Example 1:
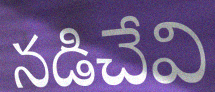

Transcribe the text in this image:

నడిచేవి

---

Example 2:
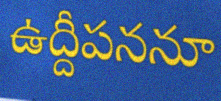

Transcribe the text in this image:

ఉద్దీపననూ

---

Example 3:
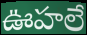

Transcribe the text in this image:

ఊహలే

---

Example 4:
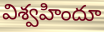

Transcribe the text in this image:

విశ్వహిందూ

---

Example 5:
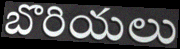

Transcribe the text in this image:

బొరియలు